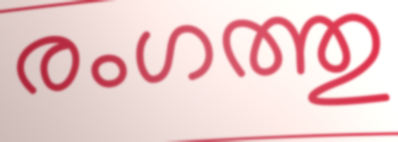
രംഗത്തു